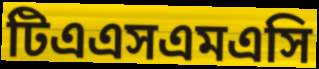
টিএএসএমএসি